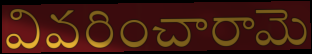
వివరించారామె